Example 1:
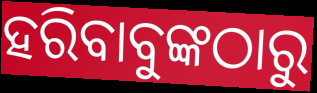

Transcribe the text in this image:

ହରିବାବୁଙ୍କଠାରୁ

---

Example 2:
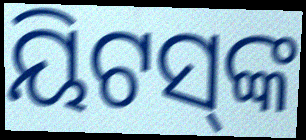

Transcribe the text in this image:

ୟିଟସ୍‌ଙ୍କ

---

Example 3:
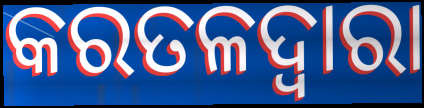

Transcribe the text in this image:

କରତଳଦ୍ଵାରା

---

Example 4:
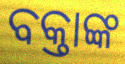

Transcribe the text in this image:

ବକ୍ତାଙ୍କ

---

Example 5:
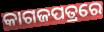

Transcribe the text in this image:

କାଗଜପତ୍ରରେ